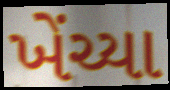
ખેંચ્યા